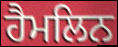
ਹੈਮਲਿਨ